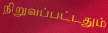
நிறுவப்பட்டதும்